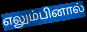
எலும்பினால்